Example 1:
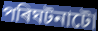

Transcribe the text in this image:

পৰিঘটনাটো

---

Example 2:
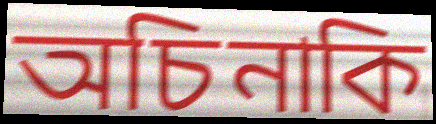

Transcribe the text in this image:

অচিনাকি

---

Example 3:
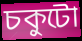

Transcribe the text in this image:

চকুটো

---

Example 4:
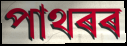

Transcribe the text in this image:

পাথৰৰ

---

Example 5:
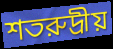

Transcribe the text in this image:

শতৰুদ্ৰীয়